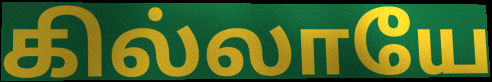
கில்லாயே